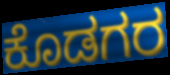
ಕೊಡಗರ